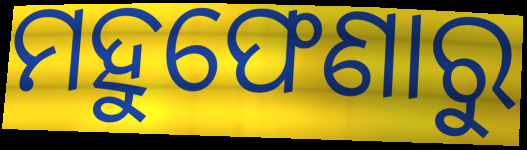
ମହୁଫେଣାରୁ